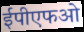
ईपीएफओ